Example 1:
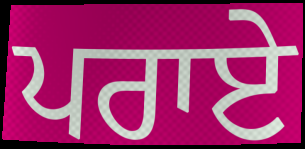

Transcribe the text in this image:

ਪਰਾਏ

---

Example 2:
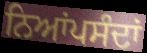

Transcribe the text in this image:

ਨਿਆਂਪਸੰਦਾਂ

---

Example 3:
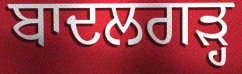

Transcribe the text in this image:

ਬਾਦਲਗੜ੍ਹ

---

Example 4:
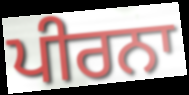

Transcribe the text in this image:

ਪੀਰਨਾ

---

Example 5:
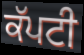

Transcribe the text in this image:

ਕੱਪਟੀ